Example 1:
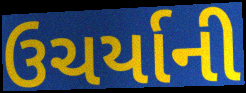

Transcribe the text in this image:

ઉચર્યાની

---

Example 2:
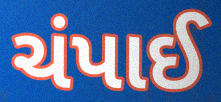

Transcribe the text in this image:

ચંપાઈ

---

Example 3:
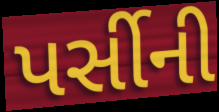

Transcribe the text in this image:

પર્સીની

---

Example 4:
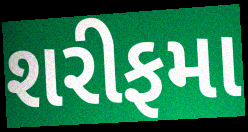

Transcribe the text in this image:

શરીફમા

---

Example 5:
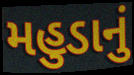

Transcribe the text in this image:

મહુડાનું